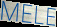
MELE